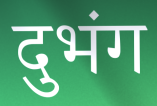
दुभंग